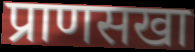
प्राणसखा